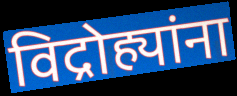
विद्रोह्यांना